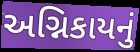
અગ્નિકાયનું